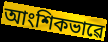
আংশিকভাৱে